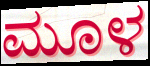
ಮೂಳ